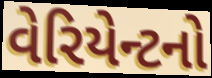
વેરિયેન્ટનો